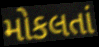
મોકલતાં